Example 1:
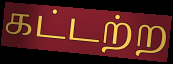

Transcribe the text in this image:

கட்டற்ற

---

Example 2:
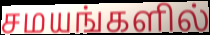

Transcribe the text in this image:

சமயங்களில்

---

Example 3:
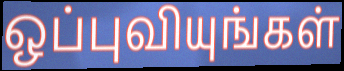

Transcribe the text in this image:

ஒப்புவியுங்கள்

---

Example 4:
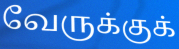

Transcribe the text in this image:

வேருக்குக்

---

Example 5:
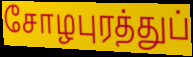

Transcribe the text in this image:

சோழபுரத்துப்